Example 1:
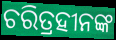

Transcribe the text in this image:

ଚରିତ୍ରହୀନଙ୍କ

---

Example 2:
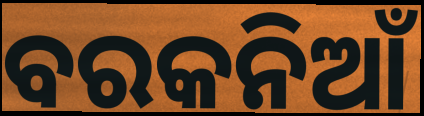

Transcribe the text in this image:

ବରକନିଆଁ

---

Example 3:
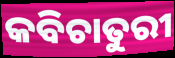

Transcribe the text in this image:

କବିଚାତୁରୀ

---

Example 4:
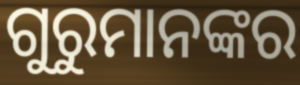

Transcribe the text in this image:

ଗୁରୁମାନଙ୍କର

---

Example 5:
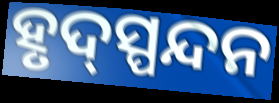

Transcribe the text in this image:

ହୃଦ୍‍ସ୍ପନ୍ଦନ